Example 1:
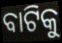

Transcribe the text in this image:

ବାଟିକୁ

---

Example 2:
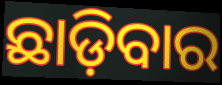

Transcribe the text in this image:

ଛାଡ଼ିବାର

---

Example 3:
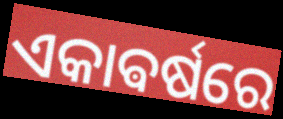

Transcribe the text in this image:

ଏକାଵର୍ଷରେ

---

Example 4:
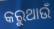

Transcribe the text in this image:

କରୁଥାଉଁ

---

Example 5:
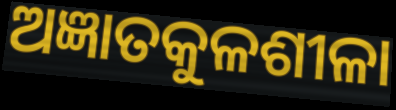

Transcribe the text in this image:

ଅଜ୍ଞାତକୁଳଶୀଳା